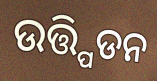
ଉତ୍ତ୍ପିଡନ